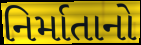
નિર્માતાનો